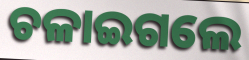
ଚଳାଇଗଲେ